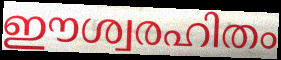
ഈശ്വരഹിതം